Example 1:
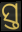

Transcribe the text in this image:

ସ୍ତ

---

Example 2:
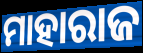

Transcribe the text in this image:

ମାହାରାଜ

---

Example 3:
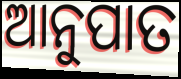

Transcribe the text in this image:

ଆନୁପାତ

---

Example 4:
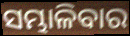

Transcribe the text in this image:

ସମ୍ଭାଳିବାର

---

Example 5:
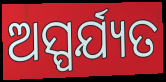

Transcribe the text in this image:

ଅସ୍ପର୍ଯ୍ୟତ